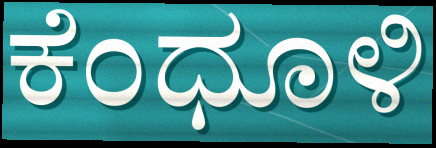
ಕೆಂಧೂಳಿ